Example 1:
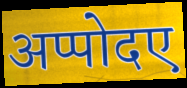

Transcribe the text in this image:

अप्पोदए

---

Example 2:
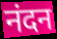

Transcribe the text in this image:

नंदन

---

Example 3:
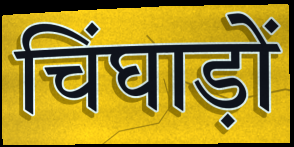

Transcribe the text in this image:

चिंघाड़ों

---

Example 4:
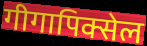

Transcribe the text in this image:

गीगापिक्सेल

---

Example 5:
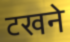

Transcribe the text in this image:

टखने